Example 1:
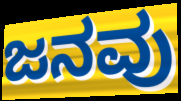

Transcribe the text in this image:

ಜನವು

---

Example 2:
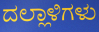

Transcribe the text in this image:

ದಲ್ಲಾಳಿಗಳು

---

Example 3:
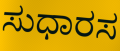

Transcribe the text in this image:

ಸುಧಾರಸ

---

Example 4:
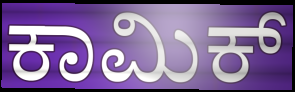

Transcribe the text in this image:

ಕಾಮಿಕ್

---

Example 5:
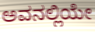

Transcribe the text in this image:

ಅವನಲ್ಲಿಯೇ